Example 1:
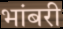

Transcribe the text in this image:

भांबरी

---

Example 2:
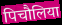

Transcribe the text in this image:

पिचौलिया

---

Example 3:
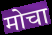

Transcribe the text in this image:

मोचा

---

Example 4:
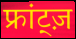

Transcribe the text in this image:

फ्रांट्ज़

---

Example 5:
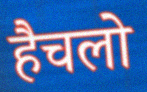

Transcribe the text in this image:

हैचलो